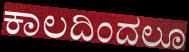
ಕಾಲದಿಂದಲೂ